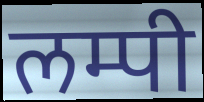
लम्पी